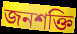
জনশক্তি